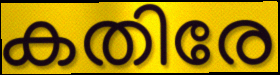
കതിരേ